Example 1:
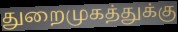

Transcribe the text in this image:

துறைமுகத்துக்கு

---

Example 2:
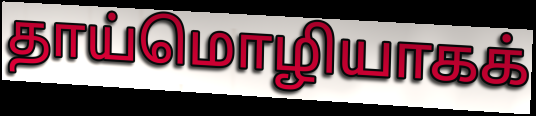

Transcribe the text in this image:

தாய்மொழியாகக்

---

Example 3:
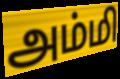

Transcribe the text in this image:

அம்மி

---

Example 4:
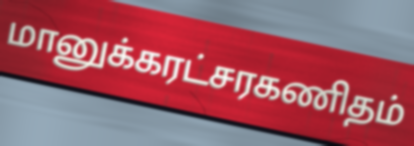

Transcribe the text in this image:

மானுக்கரட்சரகணிதம்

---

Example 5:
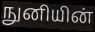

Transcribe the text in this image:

நுனியின்